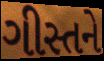
ગીસ્તને